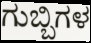
ಗುಬ್ಬಿಗಳ